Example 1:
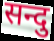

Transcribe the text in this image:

सन्दु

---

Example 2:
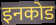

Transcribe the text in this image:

इनकोड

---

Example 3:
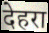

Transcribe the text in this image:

देहरा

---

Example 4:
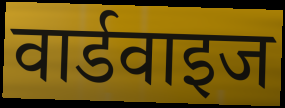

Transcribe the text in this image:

वार्डवाइज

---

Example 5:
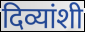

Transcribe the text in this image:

दिव्यांशी